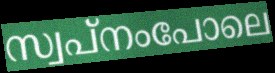
സ്വപ്നംപോലെ